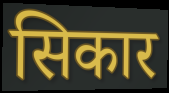
सिकार